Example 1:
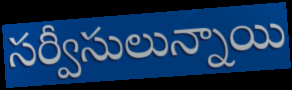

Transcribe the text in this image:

సర్వీసులున్నాయి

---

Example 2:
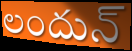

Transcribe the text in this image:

లందున్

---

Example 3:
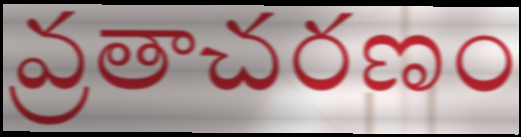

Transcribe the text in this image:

వ్రతాచరణం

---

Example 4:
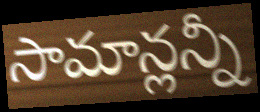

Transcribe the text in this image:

సామాన్లన్నీ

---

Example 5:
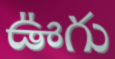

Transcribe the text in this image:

ఊగు